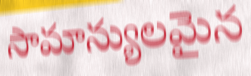
సామాన్యులమైన